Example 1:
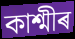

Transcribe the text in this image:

কাশ্মীৰ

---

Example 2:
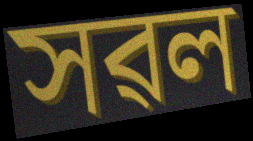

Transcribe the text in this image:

সৱল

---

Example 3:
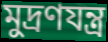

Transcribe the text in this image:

মুদ্ৰণযন্ত্ৰ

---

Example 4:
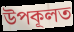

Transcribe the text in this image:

উপকূলত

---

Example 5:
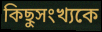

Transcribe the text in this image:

কিছুসংখ্যকে